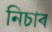
নিচাৰ